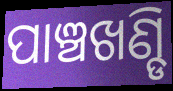
ପାଞ୍ଚଖଣ୍ଡି